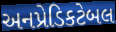
અનપ્રેડિકટેબલ